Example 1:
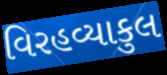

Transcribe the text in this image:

વિરહવ્યાકુલ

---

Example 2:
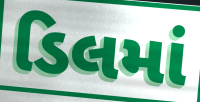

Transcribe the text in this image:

ડિલમાં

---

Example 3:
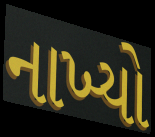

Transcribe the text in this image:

નાખ્યો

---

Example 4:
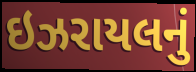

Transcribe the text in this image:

ઇઝરાયલનું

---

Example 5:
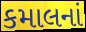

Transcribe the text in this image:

કમાલનાં